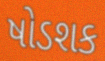
ષોડશક